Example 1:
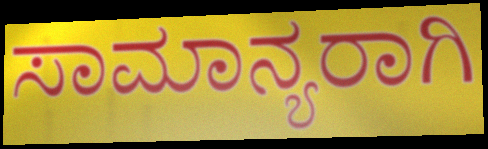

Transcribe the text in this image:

ಸಾಮಾನ್ಯರಾಗಿ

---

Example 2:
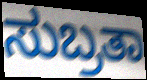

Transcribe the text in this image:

ಸುಬ್ರತಾ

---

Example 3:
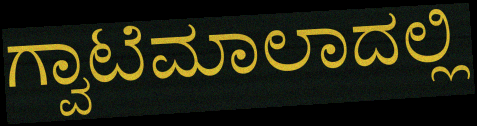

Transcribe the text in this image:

ಗ್ವಾಟೆಮಾಲಾದಲ್ಲಿ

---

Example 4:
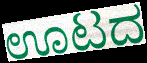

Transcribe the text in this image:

ಊಟದ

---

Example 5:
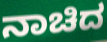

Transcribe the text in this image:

ನಾಚಿದ